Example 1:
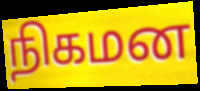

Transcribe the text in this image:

நிகமன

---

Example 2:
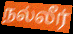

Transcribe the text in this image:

நல்லீர்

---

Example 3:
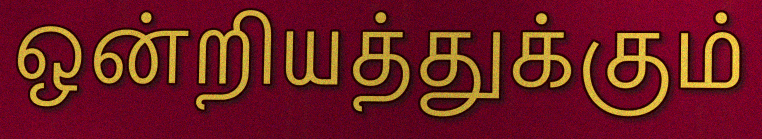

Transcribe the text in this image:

ஒன்றியத்துக்கும்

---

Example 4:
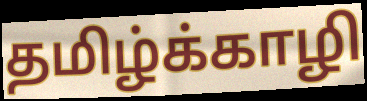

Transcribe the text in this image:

தமிழ்க்காழி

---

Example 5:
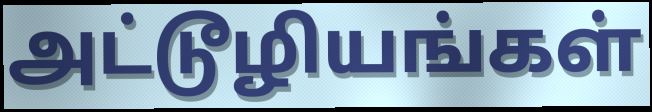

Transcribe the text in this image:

அட்டூழியங்கள்